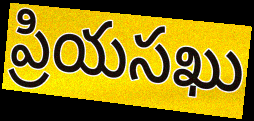
ప్రియసఖు